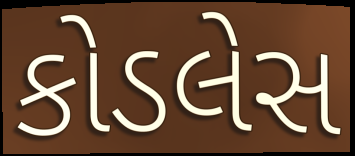
કોડલેસ